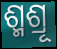
ଶ୍ମଶ୍ରୂ